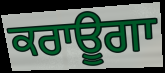
ਕਰਾਊਗਾ